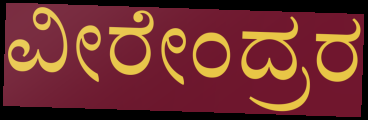
ವೀರೇಂದ್ರರ